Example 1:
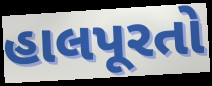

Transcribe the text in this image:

હાલપૂરતો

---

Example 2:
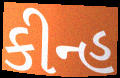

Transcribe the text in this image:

કીન્હ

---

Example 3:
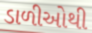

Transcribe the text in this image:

ડાળીઓથી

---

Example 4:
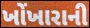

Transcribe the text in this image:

ખોંખારાની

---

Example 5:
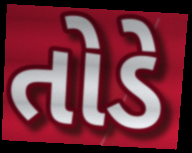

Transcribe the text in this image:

તોડે